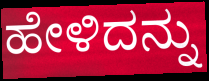
ಹೇಳಿದನ್ನು